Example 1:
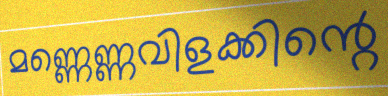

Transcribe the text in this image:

മണ്ണെണ്ണവിളക്കിന്റെ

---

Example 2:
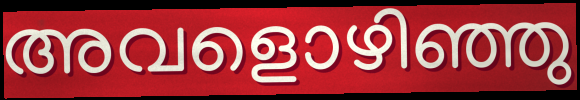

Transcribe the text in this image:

അവളൊഴിഞ്ഞു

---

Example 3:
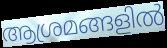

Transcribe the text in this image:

ആശ്രമങ്ങളിൽ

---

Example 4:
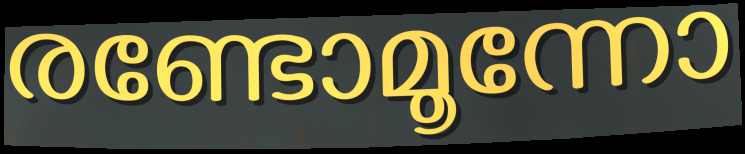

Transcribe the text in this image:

രണ്ടോമൂന്നോ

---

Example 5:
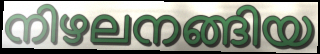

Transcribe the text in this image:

നിഴലനങ്ങിയ